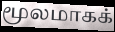
மூலமாகக்